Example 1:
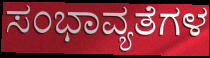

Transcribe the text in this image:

ಸಂಭಾವ್ಯತೆಗಳ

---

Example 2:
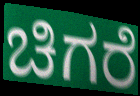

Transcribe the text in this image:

ಚಿಗರೆ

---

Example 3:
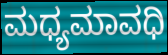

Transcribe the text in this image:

ಮಧ್ಯಮಾವಧಿ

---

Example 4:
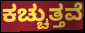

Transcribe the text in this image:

ಕಚ್ಚುತ್ತವೆ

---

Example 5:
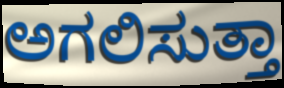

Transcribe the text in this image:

ಅಗಲಿಸುತ್ತಾ